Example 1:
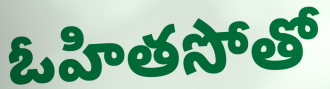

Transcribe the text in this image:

ఓహితసోతో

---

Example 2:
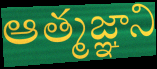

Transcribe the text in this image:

ఆత్మజ్ఞాని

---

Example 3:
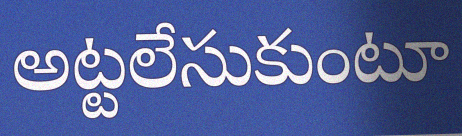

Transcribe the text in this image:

అట్టలేసుకుంటూ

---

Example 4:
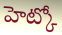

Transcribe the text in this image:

హెట్కో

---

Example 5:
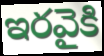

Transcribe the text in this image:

ఇరవైకి